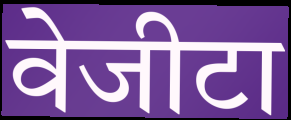
वेजीटा